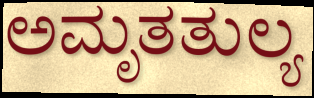
ಅಮೃತತುಲ್ಯ